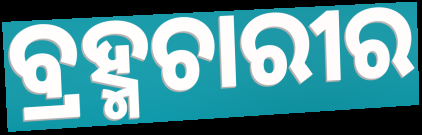
ବ୍ରହ୍ମଚାରୀର